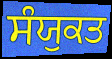
ਸੰਯੁਕਤ